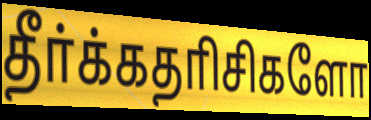
தீர்க்கதரிசிகளோ